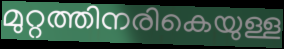
മുറ്റത്തിനരികെയുള്ള